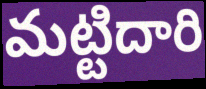
మట్టిదారి